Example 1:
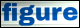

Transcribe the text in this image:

figure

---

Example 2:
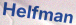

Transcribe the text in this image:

Helfman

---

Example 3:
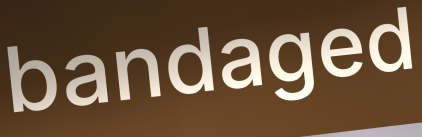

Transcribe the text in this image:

bandaged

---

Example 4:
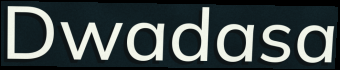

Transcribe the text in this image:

Dwadasa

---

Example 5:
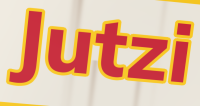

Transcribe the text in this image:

Jutzi